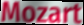
Mozart